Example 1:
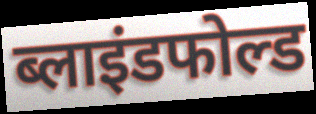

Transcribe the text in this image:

ब्लाइंडफोल्ड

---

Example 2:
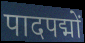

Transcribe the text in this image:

पादपद्मों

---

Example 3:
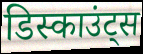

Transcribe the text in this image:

डिस्काउंट्स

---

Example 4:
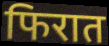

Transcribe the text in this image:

फिरात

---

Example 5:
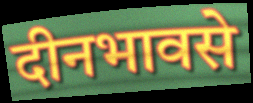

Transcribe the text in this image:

दीनभावसे